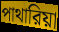
পাথারিয়া